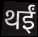
थईं